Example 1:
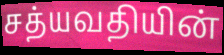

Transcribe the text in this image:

சத்யவதியின்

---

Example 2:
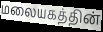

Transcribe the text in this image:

மலையகத்தின்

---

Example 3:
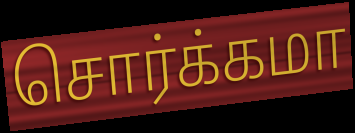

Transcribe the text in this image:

சொர்க்கமா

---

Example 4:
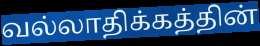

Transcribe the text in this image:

வல்லாதிக்கத்தின்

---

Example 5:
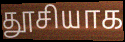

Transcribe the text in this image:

தூசியாக